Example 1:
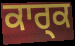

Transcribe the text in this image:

ਕਾਰ੍ਕ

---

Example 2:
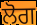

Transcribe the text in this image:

ਲੋਗ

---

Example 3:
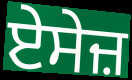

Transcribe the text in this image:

ਏਸੇਜ਼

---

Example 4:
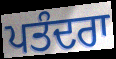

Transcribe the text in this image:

ਪਤੰਦਰਾ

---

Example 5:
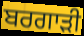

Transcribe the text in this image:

ਬਰਗਾੜੀ